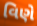
વિણે